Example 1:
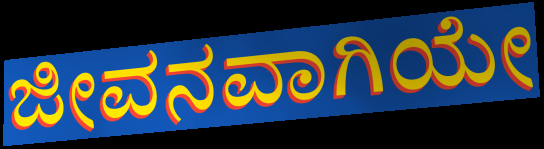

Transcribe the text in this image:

ಜೀವನವಾಗಿಯೇ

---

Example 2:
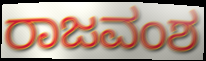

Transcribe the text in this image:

ರಾಜವಂಶ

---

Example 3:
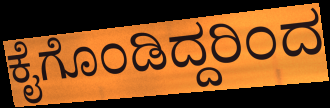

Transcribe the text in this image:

ಕೈಗೊಂಡಿದ್ದರಿಂದ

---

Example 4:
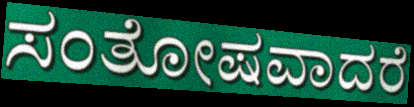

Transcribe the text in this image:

ಸಂತೋಷವಾದರೆ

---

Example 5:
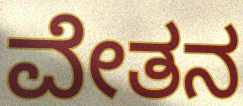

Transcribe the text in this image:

ವೇತನ